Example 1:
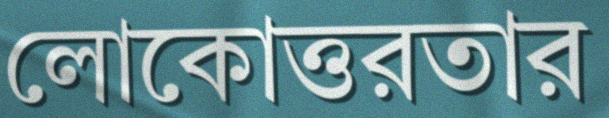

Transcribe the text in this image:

লোকোত্তরতার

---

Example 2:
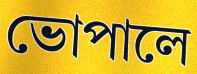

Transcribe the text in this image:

ভোপালে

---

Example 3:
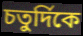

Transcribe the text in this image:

চতুর্দিকে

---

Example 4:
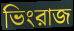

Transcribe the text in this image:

ভিংরাজ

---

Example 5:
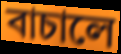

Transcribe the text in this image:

বাচালে